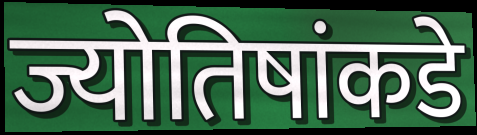
ज्योतिषांकडे